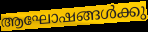
ആഘോഷങ്ങൾക്കു